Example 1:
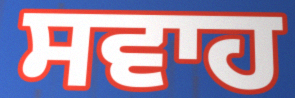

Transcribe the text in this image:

ਸਵਾਹ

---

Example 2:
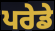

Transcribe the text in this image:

ਪਰੇਡੇ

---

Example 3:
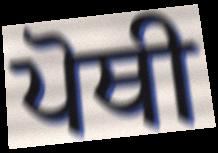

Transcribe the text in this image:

ਪੋਥੀ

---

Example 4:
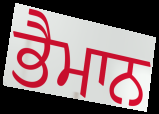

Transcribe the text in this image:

ਭੈਮਾਨ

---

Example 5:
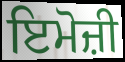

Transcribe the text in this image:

ਇਮੋਜ਼ੀ